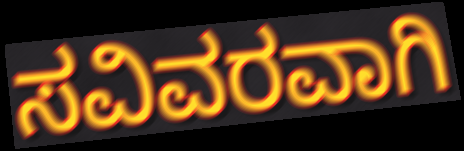
ಸವಿವರವಾಗಿ